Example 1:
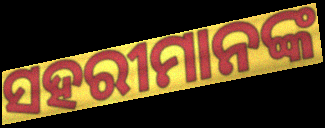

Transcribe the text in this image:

ସହରୀମାନଙ୍କ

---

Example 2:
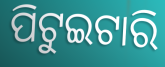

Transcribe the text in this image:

ପିଟୁଇଟାରି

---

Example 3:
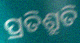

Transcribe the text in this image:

ପ୍ରତିଶ୍ରୁତି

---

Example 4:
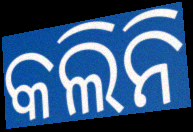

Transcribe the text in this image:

କଲିନି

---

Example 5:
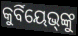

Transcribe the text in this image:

କୁର୍ବିୟେଭ୍‌ଙ୍କୁ